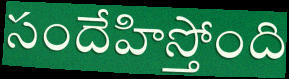
సందేహిస్తోంది